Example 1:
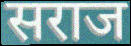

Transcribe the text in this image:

सराज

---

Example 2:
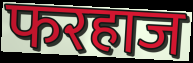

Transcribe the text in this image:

फरहाज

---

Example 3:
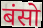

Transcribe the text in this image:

बंसो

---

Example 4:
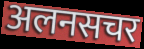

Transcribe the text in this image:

अलनसचर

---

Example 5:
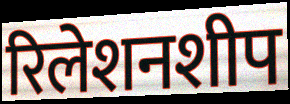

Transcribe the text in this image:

रिलेशनशीप